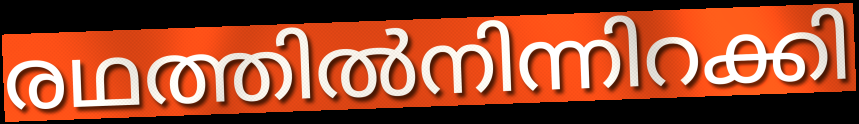
രഥത്തിൽനിന്നിറക്കി